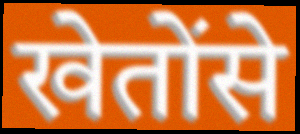
खेतोंसे